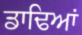
ਡਾਢਿਆਂ